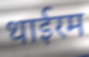
थाईरम